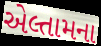
એલ્તામના